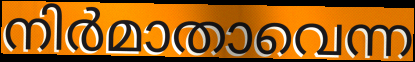
നിർമാതാവെന്ന